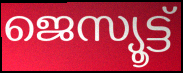
ജെസ്യൂട്ട്